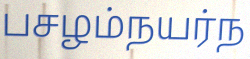
பசழம்நயர்ந